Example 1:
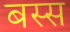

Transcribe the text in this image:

बस्स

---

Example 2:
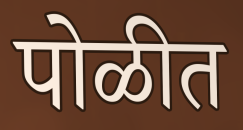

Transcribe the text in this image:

पोळीत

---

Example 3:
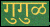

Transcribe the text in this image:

गुगुळ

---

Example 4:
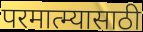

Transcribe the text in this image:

परमात्म्यासाठी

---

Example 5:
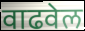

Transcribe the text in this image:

वाढवेल